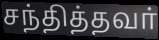
சந்தித்தவர்